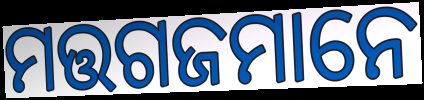
ମତ୍ତଗଜମାନେ